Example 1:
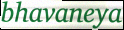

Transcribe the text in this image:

bhavaneya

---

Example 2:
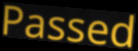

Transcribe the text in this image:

Passed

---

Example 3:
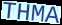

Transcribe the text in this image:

THMA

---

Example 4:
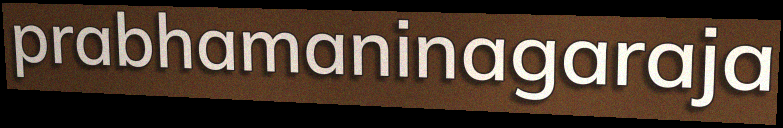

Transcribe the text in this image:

prabhamaninagaraja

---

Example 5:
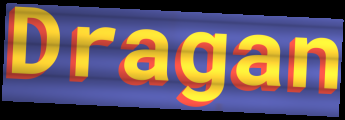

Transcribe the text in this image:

Dragan